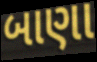
બાણા